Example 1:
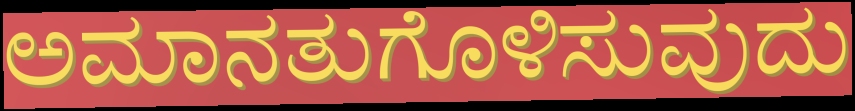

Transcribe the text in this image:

ಅಮಾನತುಗೊಳಿಸುವುದು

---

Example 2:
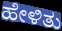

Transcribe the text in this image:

ಹೇಳಿತು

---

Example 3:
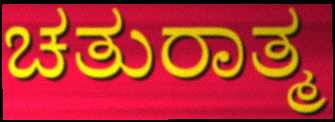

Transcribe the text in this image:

ಚತುರಾತ್ಮ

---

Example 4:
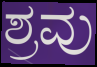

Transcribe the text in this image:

ಶ್ರವು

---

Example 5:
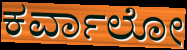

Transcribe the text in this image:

ಕರ್ವಾಲೋ